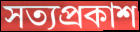
সত্যপ্ৰকাশ